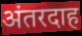
अंतरदाह